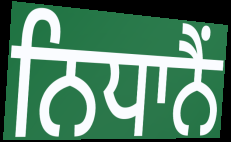
ਨਿਧਾਨੈਂ